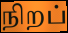
நிறப்